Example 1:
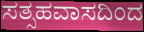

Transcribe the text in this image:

ಸತ್ಸಹವಾಸದಿಂದ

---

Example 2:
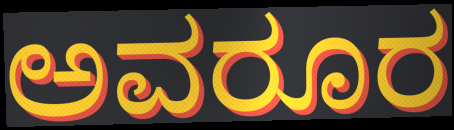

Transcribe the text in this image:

ಅವರೂರ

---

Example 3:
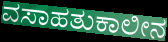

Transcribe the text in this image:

ವಸಾಹತುಕಾಲೀನ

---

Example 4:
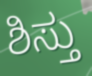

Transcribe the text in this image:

ಶಿಸ್ತು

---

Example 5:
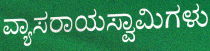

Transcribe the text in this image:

ವ್ಯಾಸರಾಯಸ್ವಾಮಿಗಳು